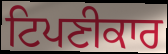
ਟਿਪਣੀਕਾਰ